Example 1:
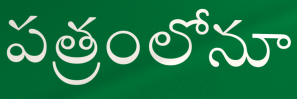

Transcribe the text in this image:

పత్రంలోనూ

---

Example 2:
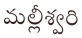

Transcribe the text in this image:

మల్లీశ్వరి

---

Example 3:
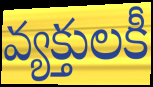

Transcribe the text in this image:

వ్యక్తులకీ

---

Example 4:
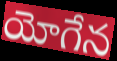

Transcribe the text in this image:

యోగేన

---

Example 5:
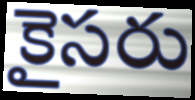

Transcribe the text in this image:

కైసరు